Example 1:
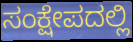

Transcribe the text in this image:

ಸಂಕ್ಷೇಪದಲ್ಲಿ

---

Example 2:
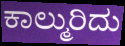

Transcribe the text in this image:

ಕಾಲ್ಮುರಿದು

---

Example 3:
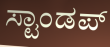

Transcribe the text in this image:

ಸ್ಟಾಂಡಪ್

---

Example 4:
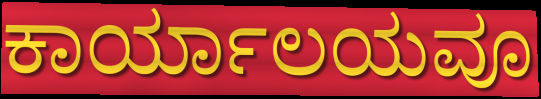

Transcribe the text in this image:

ಕಾರ್ಯಾಲಯವೂ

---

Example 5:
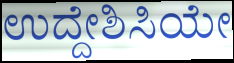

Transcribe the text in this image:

ಉದ್ದೇಶಿಸಿಯೇ